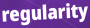
regularity